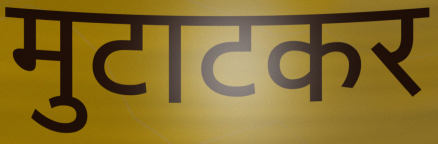
मुटाटकर